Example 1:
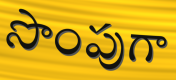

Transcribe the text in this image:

సొంపుగా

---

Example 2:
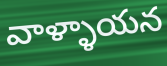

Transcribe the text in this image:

వాళ్ళాయన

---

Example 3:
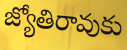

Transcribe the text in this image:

జ్యోతిరావుకు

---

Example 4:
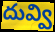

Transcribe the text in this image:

దువ్వి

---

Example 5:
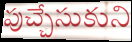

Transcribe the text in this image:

పుచ్చేసుకుని